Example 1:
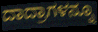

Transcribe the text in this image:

ದಾದ್ರಾಗಳನ್ನೂ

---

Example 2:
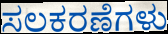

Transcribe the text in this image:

ಸಲಕರಣೆಗಳು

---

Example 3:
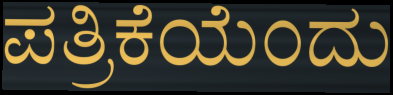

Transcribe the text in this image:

ಪತ್ರಿಕೆಯೆಂದು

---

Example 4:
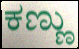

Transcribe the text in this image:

ಕಣ್ಣು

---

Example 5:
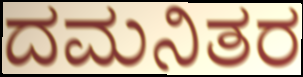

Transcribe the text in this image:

ದಮನಿತರ